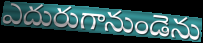
ఎదురుగానుండెను